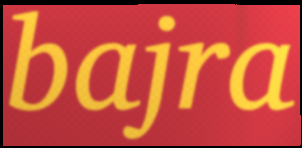
bajra